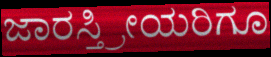
ಜಾರಸ್ತ್ರೀಯರಿಗೂ